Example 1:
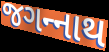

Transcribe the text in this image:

જગન્‍નાથ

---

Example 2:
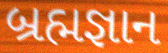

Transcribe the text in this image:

બ્રહ્મજ્ઞાન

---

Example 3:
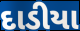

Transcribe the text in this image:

દાડીયા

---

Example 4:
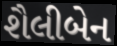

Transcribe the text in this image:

શૈલીબેન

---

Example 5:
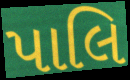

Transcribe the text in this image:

પાલિ